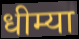
धीम्या